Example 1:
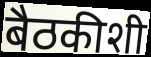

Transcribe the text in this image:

बैठकीशी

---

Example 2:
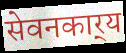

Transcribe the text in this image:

सेवनकार्य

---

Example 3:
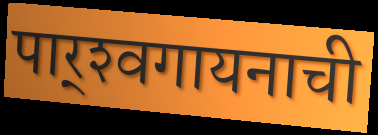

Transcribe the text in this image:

पार्श्वगायनाची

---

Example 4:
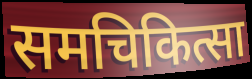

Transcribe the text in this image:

समचिकित्सा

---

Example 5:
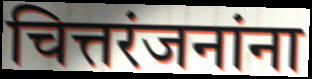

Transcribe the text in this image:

चित्तरंजनांना